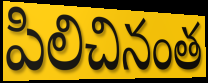
పిలిచినంత